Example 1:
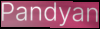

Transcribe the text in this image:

Pandyan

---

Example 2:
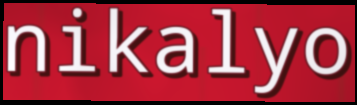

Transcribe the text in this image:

nikalyo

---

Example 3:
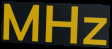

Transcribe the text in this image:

MHz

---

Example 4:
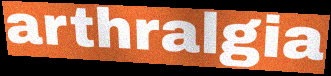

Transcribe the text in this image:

arthralgia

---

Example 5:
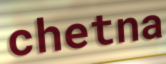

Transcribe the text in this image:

chetna